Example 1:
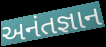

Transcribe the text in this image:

અનંતજ્ઞાન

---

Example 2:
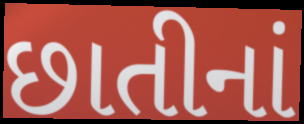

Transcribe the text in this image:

છાતીનાં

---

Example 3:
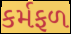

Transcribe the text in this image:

કર્મફળ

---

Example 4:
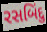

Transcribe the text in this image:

રસબિંદુ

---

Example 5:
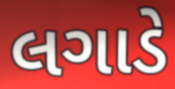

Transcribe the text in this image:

લગાડે